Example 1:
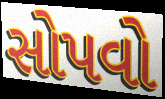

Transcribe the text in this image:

સોપવો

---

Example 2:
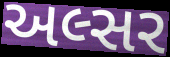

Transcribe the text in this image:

અલ્સર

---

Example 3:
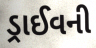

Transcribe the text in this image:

ડ્રાઈવની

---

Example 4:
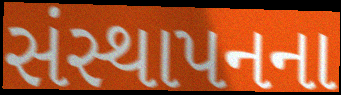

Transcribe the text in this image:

સંસ્થાપનના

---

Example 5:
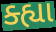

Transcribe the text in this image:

ક્હ્યા